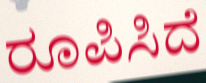
ರೂಪಿಸಿದೆ